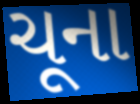
ચૂના